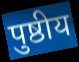
पुष्ठीय